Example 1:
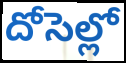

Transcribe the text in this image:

దోసెల్లో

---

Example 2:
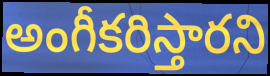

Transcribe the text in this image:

అంగీకరిస్తారని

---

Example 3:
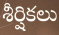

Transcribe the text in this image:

శీర్షికలు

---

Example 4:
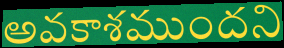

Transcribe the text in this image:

అవకాశముందని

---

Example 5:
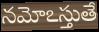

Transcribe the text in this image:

నమోఽస్తుతే